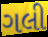
ગલી